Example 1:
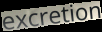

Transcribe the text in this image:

excretion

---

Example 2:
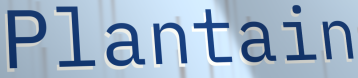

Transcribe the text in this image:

Plantain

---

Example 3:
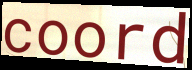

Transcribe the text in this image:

coord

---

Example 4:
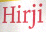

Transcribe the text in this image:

Hirji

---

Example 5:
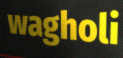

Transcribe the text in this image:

wagholi